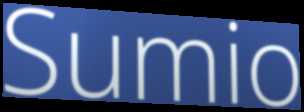
Sumio